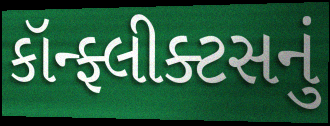
કૉન્ફ્લીક્ટસનું